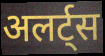
अलर्ट्स